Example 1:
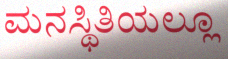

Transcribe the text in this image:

ಮನಸ್ಥಿತಿಯಲ್ಲೂ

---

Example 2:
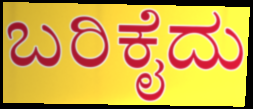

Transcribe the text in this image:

ಬರಿಕೈದು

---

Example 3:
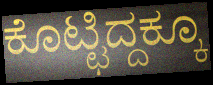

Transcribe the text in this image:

ಕೊಟ್ಟಿದ್ದಕ್ಕೂ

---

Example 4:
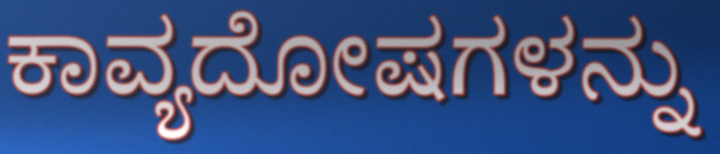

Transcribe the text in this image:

ಕಾವ್ಯದೋಷಗಳನ್ನು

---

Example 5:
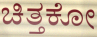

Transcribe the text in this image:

ಚಿತ್ತಕೋ